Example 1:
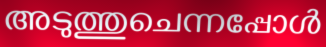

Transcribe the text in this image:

അടുത്തുചെന്നപ്പോൾ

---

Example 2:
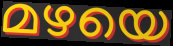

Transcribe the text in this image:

മഴയെ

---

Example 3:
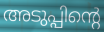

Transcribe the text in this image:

അടുപ്പിന്റെ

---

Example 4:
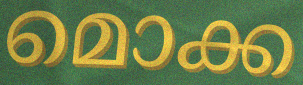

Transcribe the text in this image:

മൊക്ക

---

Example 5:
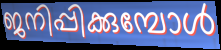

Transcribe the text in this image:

ജനിപ്പിക്കുമ്പോൾ